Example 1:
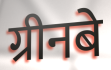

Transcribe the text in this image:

ग्रीनबे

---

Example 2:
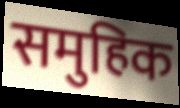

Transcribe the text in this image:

समुहिक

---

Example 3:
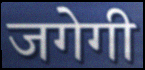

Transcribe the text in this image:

जगेगी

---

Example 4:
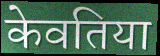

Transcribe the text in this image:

केवतिया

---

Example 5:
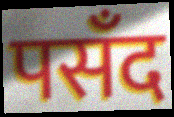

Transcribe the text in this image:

पसँद